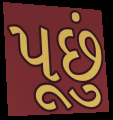
પૂછું